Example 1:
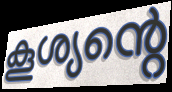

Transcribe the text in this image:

കൂശ്യന്റെ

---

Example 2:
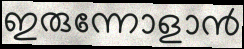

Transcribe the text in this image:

ഇരുന്നോളാൻ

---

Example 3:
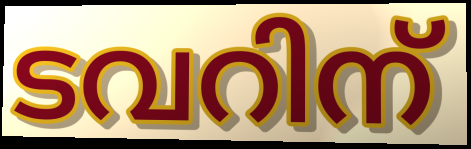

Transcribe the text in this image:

ടവറിന്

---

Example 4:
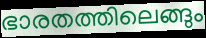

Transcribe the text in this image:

ഭാരതത്തിലെങ്ങും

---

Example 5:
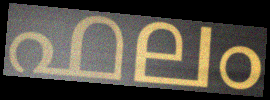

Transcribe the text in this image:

ഫലം